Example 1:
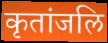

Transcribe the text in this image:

कृतांजलि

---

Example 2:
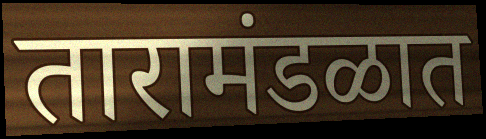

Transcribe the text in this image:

तारामंडळात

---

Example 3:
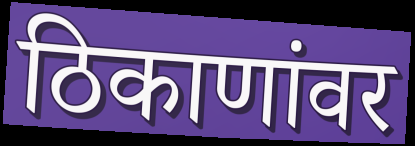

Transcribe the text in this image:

ठिकाणांवर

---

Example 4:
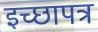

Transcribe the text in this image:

इच्छापत्र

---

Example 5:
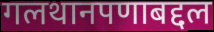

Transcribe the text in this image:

गलथानपणाबद्दल